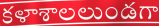
కళాశాలలుండగా